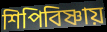
শিপিবিষ্ণায়